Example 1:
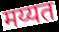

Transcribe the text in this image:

मय्यत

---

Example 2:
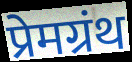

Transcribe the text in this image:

प्रेमग्रंथ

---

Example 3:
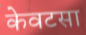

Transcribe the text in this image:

केवटसा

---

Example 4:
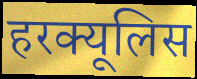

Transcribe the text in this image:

हरक्यूलिस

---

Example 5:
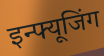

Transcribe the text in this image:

इन्फ्यूजिंग